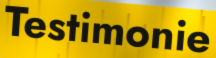
Testimonie